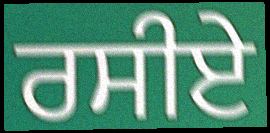
ਰਸੀਏ